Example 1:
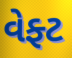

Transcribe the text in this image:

વેફ્ટ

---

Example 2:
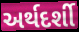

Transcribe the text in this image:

અર્થદર્શી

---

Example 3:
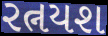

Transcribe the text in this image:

રત્નયશ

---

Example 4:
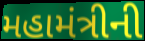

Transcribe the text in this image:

મહામંત્રીની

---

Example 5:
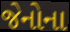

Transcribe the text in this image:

જેનોના